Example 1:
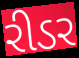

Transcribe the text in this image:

રીડર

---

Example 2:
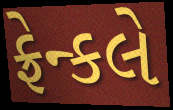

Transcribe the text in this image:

ફ્રેન્કલે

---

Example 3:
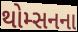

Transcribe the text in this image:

થોમ્સનના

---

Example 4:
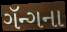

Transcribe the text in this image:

ગૅન્ગના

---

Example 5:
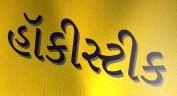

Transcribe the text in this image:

હૉકીસ્ટીક